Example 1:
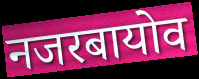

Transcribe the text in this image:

नजरबायोव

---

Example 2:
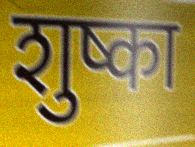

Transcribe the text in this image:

शुष्का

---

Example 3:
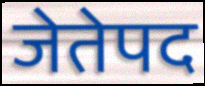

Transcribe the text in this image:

जेतेपद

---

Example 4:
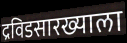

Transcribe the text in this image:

द्रविडसारख्याला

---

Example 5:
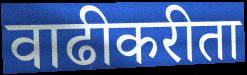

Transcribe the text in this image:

वाढीकरीता